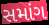
સમાંગ